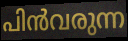
പിൻവരുന്ന